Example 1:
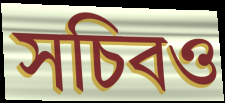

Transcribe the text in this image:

সচিবও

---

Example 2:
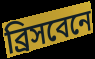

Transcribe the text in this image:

ব্রিসবেনে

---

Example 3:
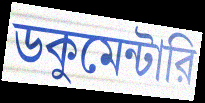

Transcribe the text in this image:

ডকুমেন্টারি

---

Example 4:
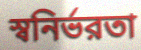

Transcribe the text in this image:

স্বনির্ভরতা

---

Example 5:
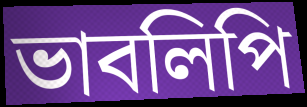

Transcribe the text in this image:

ভাবলিপি